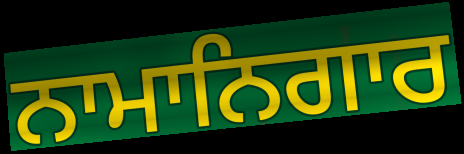
ਨਾਮਾਨਿਗਾਰ